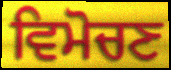
ਵਿਮੋਚਣ